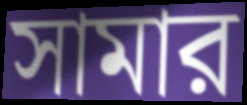
সামার